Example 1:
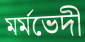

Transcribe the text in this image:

মৰ্মভেদী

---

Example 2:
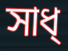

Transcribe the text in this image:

সাধ্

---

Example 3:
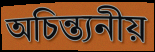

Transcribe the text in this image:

অচিন্ত্যনীয়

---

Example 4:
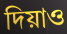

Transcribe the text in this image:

দিয়াও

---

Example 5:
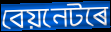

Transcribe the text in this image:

বেয়নেটৰে